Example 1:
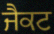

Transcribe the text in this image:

ਜੈਕਟ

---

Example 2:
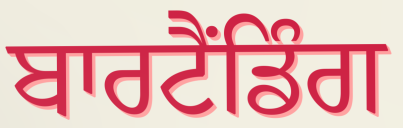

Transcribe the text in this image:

ਬਾਰਟੈਂਡਿੰਗ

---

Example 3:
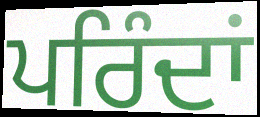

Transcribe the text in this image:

ਪਰਿੰਦਾਂ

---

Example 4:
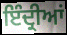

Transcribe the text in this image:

ਇੰਦ੍ਰੀਆਂ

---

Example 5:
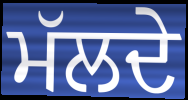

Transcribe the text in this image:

ਮੱਲਦੇ